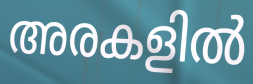
അരകളിൽ